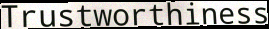
Trustworthiness